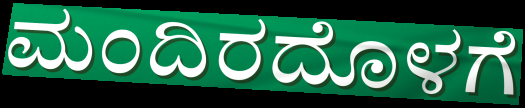
ಮಂದಿರದೊಳಗೆ